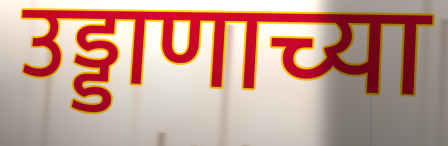
उड्डाणाच्या